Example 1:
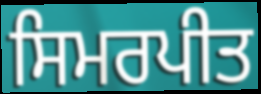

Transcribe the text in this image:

ਸਿਮਰਪੀਤ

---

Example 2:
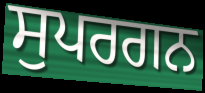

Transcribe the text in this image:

ਸੁਪਰਗਨ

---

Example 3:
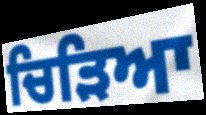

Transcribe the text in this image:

ਚਿੜਿਆ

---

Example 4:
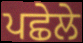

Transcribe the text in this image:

ਪਛੇਲੇ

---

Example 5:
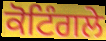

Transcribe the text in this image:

ਕੋਟਿੰਗਲੇ